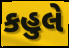
કહુલે